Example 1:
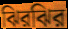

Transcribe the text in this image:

ঝিরঝির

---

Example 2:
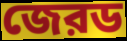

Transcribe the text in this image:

জেরড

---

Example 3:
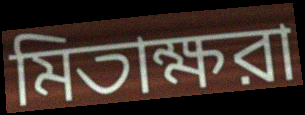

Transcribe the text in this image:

মিতাক্ষরা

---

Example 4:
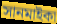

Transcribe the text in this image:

সানমাইকা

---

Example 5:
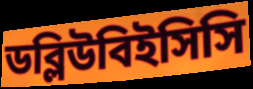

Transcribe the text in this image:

ডব্লিউবিইসিসি